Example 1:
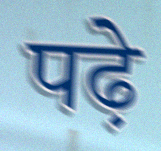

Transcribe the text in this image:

पढ़े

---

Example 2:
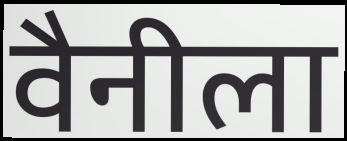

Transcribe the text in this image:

वैनीला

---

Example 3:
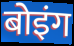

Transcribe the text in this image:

बोइंग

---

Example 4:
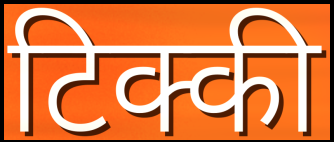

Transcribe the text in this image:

टिक्की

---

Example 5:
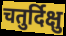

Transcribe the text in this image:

चतुर्दिक्षु